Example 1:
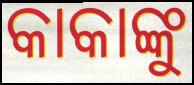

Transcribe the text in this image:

କାକାଙ୍କୁ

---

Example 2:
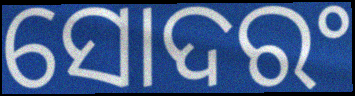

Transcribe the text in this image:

ସୋଦରଂ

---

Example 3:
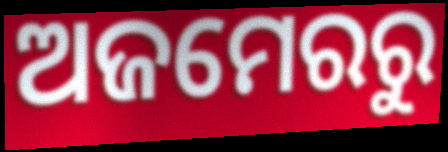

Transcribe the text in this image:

ଅଜମେରରୁ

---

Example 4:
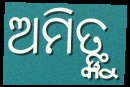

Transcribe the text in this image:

ଅମିତ୍ଙ୍କୁ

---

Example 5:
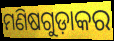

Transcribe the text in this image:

ମଣିଷଗୁଡ଼ାକର